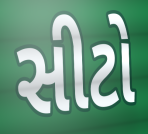
સીટો